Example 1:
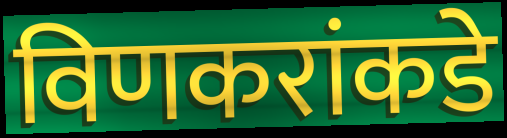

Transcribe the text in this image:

विणकरांकडे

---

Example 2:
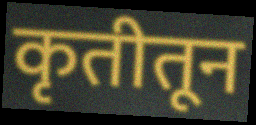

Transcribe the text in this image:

कृतीतून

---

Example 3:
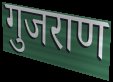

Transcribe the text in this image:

गुजराण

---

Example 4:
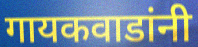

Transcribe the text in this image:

गायकवाडांनी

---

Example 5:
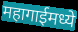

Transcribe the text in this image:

महागाईमध्ये